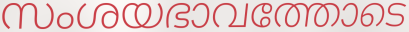
സംശയഭാവത്തോടെ